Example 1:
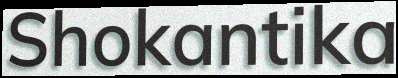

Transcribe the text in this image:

Shokantika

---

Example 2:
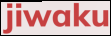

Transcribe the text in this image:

jiwaku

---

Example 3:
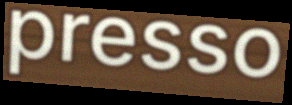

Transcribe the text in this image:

presso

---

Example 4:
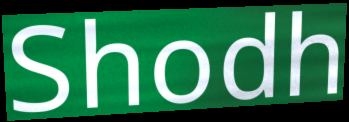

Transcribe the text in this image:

Shodh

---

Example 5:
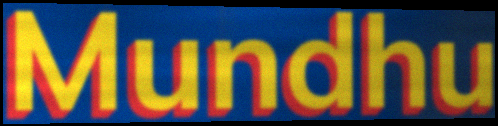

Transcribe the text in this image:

Mundhu